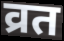
व्रत